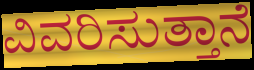
ವಿವರಿಸುತ್ತಾನೆ